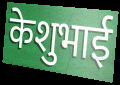
केशुभाई